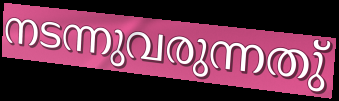
നടന്നുവരുന്നതു്